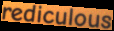
rediculous